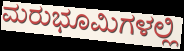
ಮರುಭೂಮಿಗಳಲ್ಲಿ